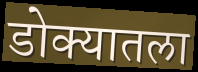
डोक्यातला